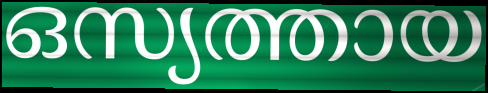
ഒസ്യത്തായ